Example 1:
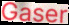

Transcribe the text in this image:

Gaser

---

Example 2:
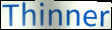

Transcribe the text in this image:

Thinner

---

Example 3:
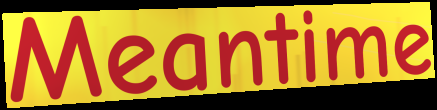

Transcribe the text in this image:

Meantime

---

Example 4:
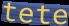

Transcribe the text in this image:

tete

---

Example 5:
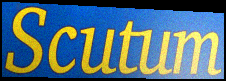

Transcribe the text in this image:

Scutum